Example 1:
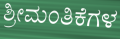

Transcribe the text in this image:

ಶ್ರೀಮಂತಿಕೆಗಳ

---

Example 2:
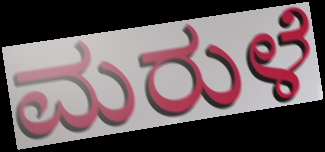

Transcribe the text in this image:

ಮರುಳೆ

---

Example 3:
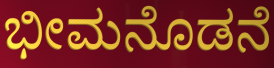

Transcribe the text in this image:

ಭೀಮನೊಡನೆ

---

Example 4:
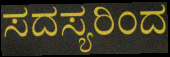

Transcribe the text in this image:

ಸದಸ್ಯರಿಂದ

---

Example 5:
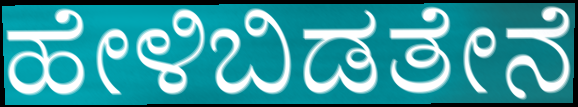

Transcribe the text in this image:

ಹೇಳಿಬಿಡತೇನೆ